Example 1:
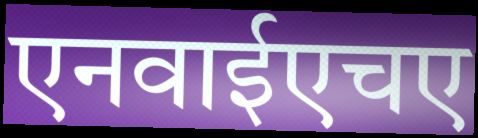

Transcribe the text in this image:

एनवाईएचए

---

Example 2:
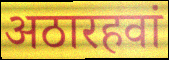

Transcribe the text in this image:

अठारहवां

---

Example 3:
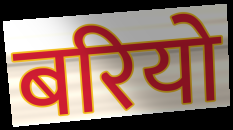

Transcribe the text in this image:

बरियो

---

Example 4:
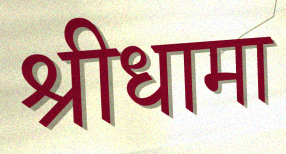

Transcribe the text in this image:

श्रीधामा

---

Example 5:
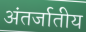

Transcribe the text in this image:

अंतर्जातीय